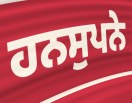
ਹਨਸੁਪਨੇ